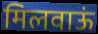
मिलवाऊं